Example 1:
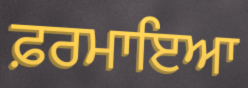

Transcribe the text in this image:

ਫ਼ਰਮਾਇਆ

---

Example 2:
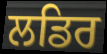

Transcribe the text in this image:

ਲਡਿਰ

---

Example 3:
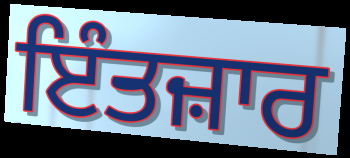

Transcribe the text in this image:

ਇੰਤਜ਼ਾਰ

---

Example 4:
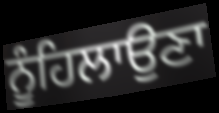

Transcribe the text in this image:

ਨੂੰਹਿਲਾਉਣਾ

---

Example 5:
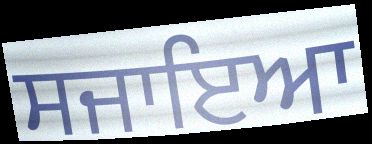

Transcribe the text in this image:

ਸਜਾਇਆ